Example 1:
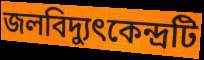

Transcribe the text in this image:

জলবিদ্যুৎকেন্দ্রটি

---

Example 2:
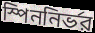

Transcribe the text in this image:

স্পিননির্ভর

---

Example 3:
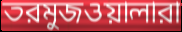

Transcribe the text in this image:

তরমুজওয়ালারা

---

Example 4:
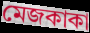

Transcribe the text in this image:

মেজকাকা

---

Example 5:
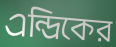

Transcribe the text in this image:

এন্দ্রিকের